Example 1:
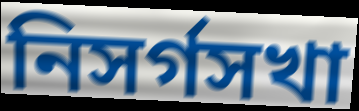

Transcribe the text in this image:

নিসর্গসখা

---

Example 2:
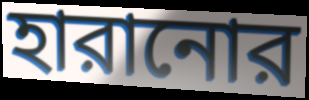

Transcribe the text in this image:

হারানোর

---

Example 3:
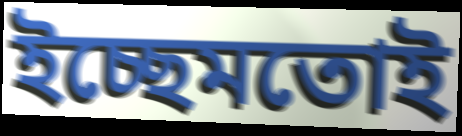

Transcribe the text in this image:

ইচ্ছেমতোই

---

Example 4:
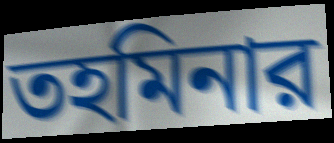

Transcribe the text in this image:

তহমিনার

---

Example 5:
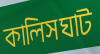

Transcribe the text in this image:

কালিসঘাট